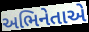
અભિનેતાએ